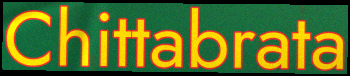
Chittabrata